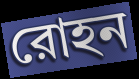
রোহন